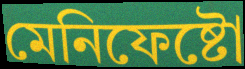
মেনিফেষ্টো